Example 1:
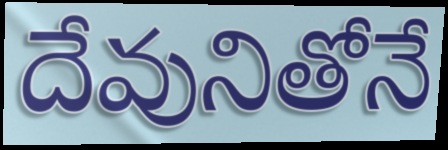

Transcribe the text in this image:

దేవునితోనే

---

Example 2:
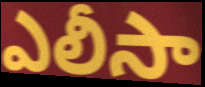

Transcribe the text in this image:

ఎలీసా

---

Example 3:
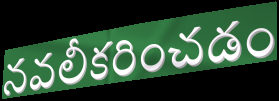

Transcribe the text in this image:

నవలీకరించడం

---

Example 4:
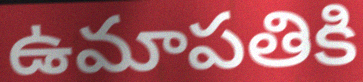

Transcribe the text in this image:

ఉమాపతికి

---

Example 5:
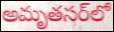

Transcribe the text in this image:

అమృతసర్‌లో